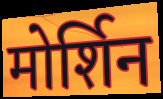
मोर्शिन